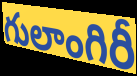
గులాంగిరీ